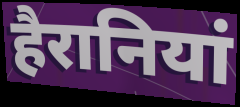
हैरानियां